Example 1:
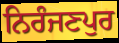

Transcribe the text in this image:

ਨਿਰੰਜਣਪੁਰ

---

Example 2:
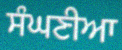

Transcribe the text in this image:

ਸੰਘਣੀਆ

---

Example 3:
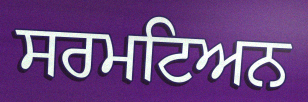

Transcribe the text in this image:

ਸਰਮਟਿਅਨ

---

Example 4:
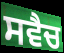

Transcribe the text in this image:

ਸਵੈਚ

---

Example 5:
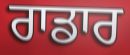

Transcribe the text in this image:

ਰਾਡਾਰ